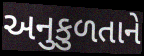
અનુકુળતાને